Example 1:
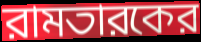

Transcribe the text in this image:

রামতারকের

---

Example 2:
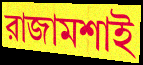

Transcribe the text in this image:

রাজামশাই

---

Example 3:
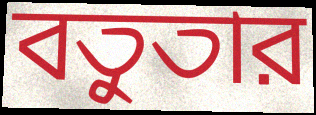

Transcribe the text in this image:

বতুতার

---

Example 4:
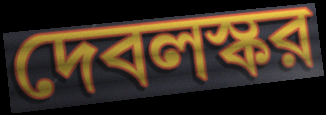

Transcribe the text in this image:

দেবলস্কর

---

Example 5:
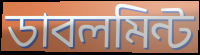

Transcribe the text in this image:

ডাবলমিন্ট